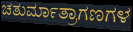
ಚತುರ್ಮಾತ್ರಾಗಣಗಳ